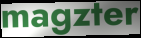
magzter